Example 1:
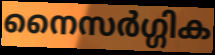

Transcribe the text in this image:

നൈസർഗ്ഗിക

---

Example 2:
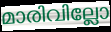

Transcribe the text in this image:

മാരിവില്ലോ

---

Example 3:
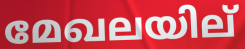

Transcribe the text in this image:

മേഖലയില്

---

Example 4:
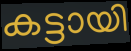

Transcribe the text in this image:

കട്ടായി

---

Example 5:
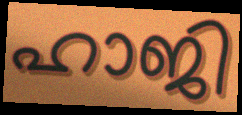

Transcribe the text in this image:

ഹാജി